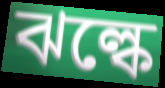
ঝল্কে